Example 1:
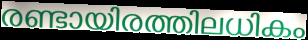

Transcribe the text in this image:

രണ്ടായിരത്തിലധികം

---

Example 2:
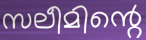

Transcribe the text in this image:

സലീമിന്റെ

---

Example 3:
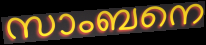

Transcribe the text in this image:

സാംബനെ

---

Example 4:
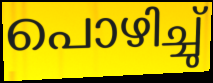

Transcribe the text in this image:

പൊഴിച്ചു്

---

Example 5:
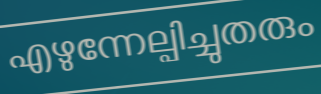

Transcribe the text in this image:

എഴുന്നേല്പിച്ചുതരും